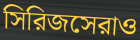
সিরিজসেরাও